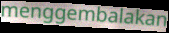
menggembalakan